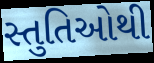
સ્તુતિઓથી